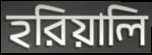
হরিয়ালি